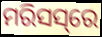
ମରିସସ୍‌ରେ